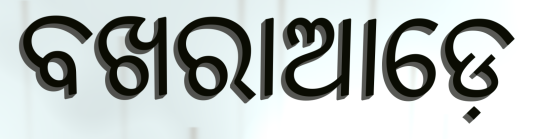
ବଖରାଆଡ଼େ